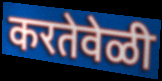
करतेवेळी